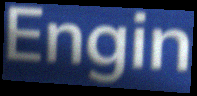
Engin